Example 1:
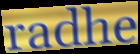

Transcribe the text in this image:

radhe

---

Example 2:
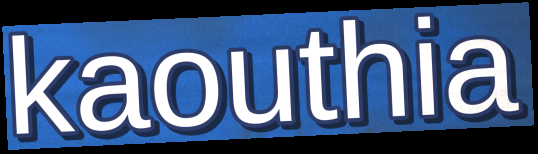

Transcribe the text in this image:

kaouthia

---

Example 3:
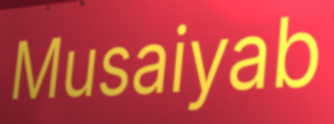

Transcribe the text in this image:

Musaiyab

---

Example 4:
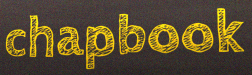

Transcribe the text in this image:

chapbook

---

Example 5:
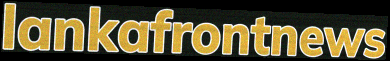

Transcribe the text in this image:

lankafrontnews